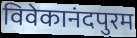
विवेकानंदपुरम